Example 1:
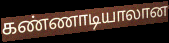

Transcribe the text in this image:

கண்ணாடியாலான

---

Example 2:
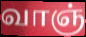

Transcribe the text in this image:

வாஞ்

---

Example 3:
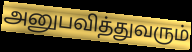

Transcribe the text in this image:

அனுபவித்துவரும்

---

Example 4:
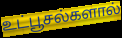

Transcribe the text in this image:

உட்பூசல்களால்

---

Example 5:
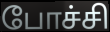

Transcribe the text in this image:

போச்சி